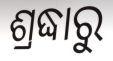
ଶ୍ରଦ୍ଧାରୁ